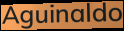
Aguinaldo